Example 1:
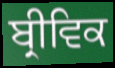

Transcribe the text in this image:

ਬ੍ਰੀਵਿਕ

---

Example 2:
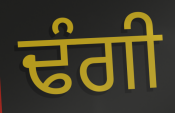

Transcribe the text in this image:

ਢੰਗੀ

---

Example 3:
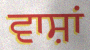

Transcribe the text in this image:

ਵਾਸ਼ਾਂ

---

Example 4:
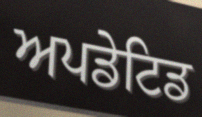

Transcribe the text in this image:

ਅਪਡੇਟਿਡ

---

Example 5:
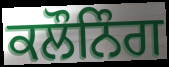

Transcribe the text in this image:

ਕਲੌਨਿੰਗ